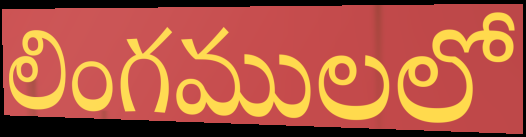
లింగములలో